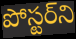
పోస్టర్‌ని